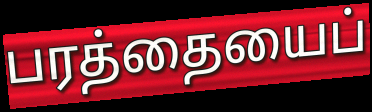
பரத்தையைப்